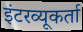
इंटरव्यूकर्ता